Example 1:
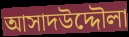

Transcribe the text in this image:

আসাদউদ্দৌলা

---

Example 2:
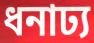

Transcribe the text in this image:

ধনাঢ্য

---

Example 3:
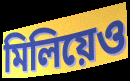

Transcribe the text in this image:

মিলিয়েও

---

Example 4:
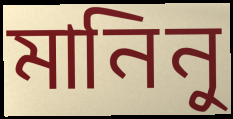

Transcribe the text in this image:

মানিনু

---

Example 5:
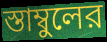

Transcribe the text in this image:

স্তাম্বুলের